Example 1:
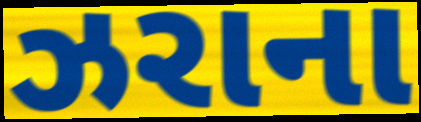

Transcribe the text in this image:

ઝરાના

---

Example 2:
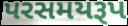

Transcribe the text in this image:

પરસમયરૂપ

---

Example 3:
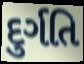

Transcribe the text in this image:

દુર્ગતિ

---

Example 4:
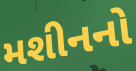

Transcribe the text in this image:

મશીનનો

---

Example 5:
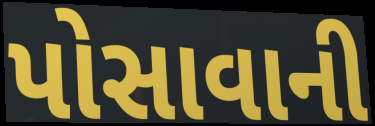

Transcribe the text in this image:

પોસાવાની